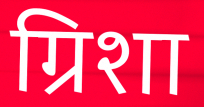
ग्रिशा